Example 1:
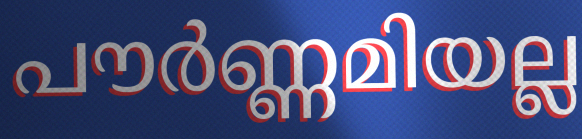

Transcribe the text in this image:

പൗർണ്ണമിയല്ല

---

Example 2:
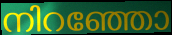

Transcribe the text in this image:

നിറഞ്ഞോ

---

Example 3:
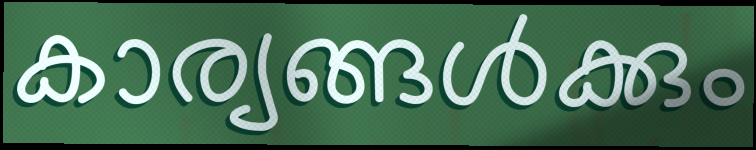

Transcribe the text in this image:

കാര്യങ്ങൾക്കും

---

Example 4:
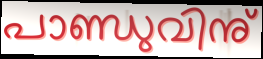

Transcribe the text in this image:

പാണ്ഡുവിനു്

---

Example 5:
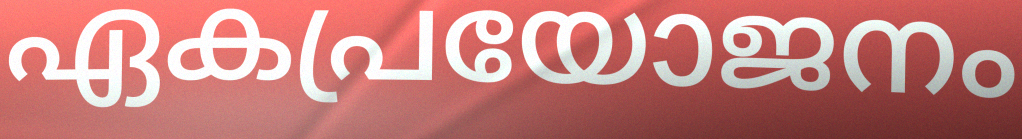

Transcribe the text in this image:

ഏകപ്രയോജനം